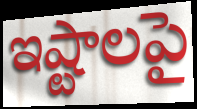
ఇష్టాలపై